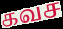
கவச